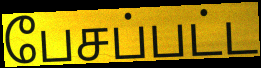
பேசப்பட்ட